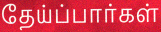
தேய்ப்பார்கள்